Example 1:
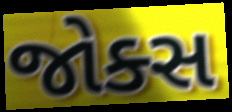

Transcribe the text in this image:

જોક્સ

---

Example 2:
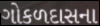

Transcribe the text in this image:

ગોકળદાસના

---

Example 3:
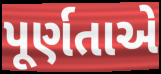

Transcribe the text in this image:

પૂર્ણતાએ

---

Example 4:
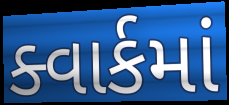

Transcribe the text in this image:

ક્વાર્કમાં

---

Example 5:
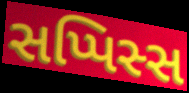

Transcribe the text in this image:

સપ્પિસ્સ